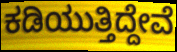
ಕಡಿಯುತ್ತಿದ್ದೇವೆ